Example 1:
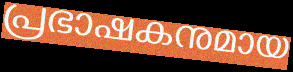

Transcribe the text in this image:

പ്രഭാഷകനുമായ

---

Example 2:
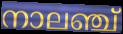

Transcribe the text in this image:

നാലഞ്ച്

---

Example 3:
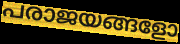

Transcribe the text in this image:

പരാജയങ്ങളോ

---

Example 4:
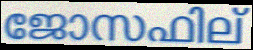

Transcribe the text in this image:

ജോസഫില്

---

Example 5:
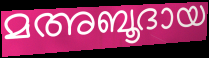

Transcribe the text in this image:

മഅബൂദായ